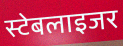
स्टेबलाइजर